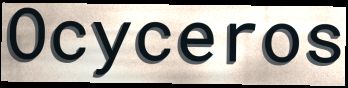
Ocyceros